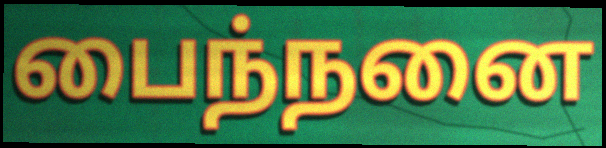
பைந்நனை